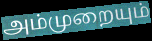
அம்முறையும்